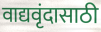
वाद्यवृंदासाठी